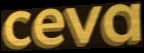
ceva